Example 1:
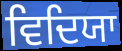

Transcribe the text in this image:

ਵਿਦਿਯਾ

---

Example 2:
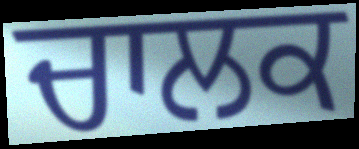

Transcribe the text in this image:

ਚਾਲਕ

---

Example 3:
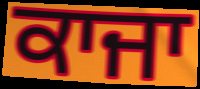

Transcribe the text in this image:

ਕਾਜਾ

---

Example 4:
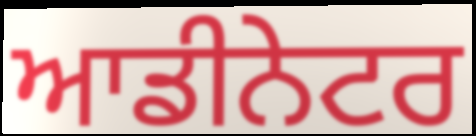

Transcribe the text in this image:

ਆਡੀਨੇਟਰ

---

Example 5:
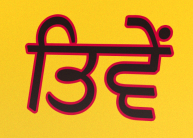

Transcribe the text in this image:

ਤਿਵੇਂ